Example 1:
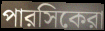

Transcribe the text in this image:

পারসিকেরা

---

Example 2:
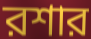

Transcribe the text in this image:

রশার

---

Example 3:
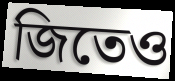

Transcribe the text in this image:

জিতেও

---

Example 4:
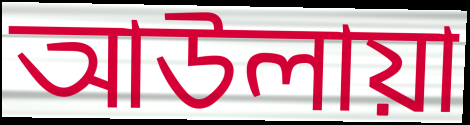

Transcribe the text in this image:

আউলায়া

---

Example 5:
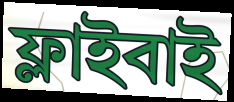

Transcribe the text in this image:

ফ্লাইবাই